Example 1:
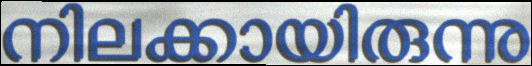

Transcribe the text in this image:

നിലക്കായിരുന്നു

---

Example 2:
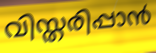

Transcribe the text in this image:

വിസ്തരിപ്പാൻ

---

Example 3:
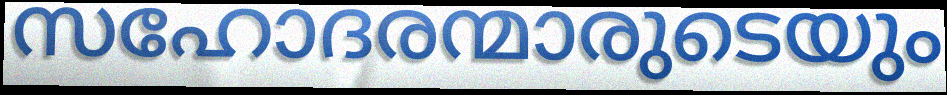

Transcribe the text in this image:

സഹോദരന്മാരുടെയും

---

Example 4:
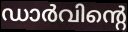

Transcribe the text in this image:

ഡാർവിന്റെ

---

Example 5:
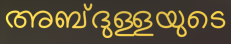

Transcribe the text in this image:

അബ്ദുള്ളയുടെ